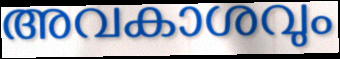
അവകാശവും